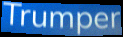
Trumper